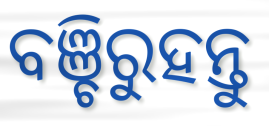
ବଞ୍ଚିରୁହନ୍ତୁ